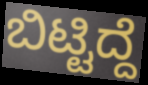
ಬಿಟ್ಟಿದ್ದೆ